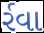
ર્રવા